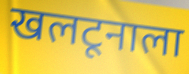
खलटूनाला